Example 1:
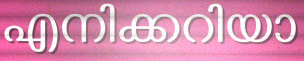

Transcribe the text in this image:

എനിക്കറിയാ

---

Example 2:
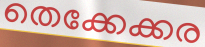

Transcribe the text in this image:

തെക്കേക്കര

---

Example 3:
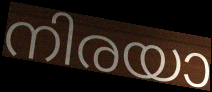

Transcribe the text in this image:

നിരയാ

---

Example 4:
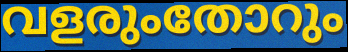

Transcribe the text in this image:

വളരുംതോറും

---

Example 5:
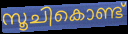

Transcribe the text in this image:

സൂചികൊണ്ട്